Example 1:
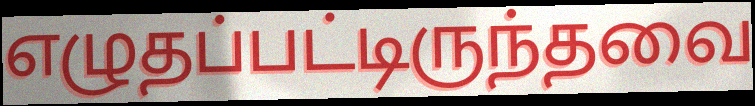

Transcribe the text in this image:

எழுதப்பட்டிருந்தவை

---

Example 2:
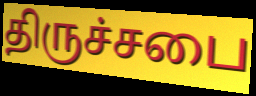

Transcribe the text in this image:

திருச்சபை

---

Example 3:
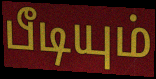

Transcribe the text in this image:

பீடியும்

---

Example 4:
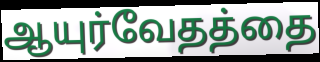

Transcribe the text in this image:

ஆயுர்வேதத்தை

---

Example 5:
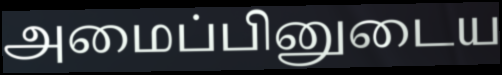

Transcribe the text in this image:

அமைப்பினுடைய